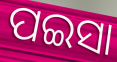
ପଇସା